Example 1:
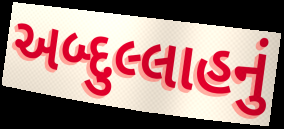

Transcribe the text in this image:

અબ્દુલ્લાહનું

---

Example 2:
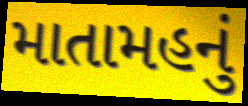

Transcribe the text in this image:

માતામહનું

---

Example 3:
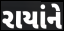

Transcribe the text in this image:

રાયાંને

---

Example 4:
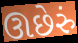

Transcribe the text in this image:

ઊછેરું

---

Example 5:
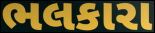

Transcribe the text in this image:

ભલકારા